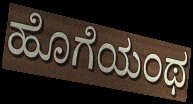
ಹೊಗೆಯಂಥ